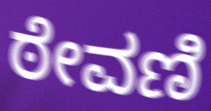
ಠೇವಣಿ